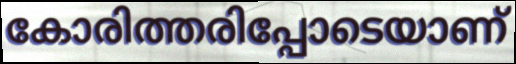
കോരിത്തരിപ്പോടെയാണ്